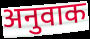
अनुवाक